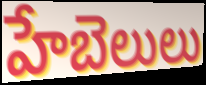
హేబెలులు